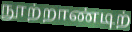
நூற்றாண்டிற்